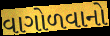
વાગોળવાનો